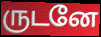
ருடனே